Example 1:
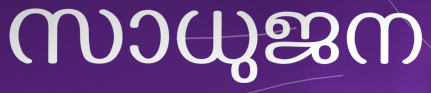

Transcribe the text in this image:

സാധുജന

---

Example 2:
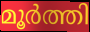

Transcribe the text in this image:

മൂർത്തി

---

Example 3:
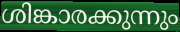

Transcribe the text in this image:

ശിങ്കാരക്കുന്നും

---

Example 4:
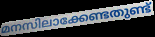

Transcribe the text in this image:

മനസിലാക്കേണ്ടതുണ്ട്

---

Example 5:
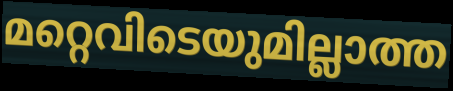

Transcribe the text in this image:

മറ്റെവിടെയുമില്ലാത്ത